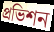
প্রভিশন